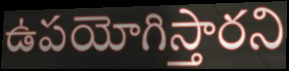
ఉపయోగిస్తారని